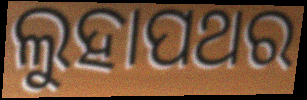
ଲୁହାପଥର